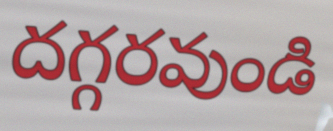
దగ్గరవుండి